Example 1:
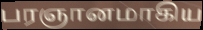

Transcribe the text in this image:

பரஞானமாகிய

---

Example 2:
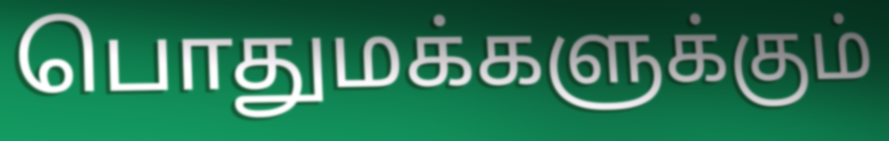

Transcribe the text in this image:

பொதுமக்களுக்கும்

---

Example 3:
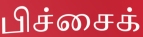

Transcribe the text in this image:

பிச்சைக்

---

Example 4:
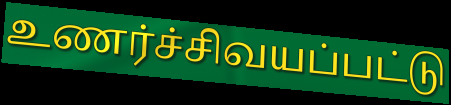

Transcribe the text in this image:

உணர்ச்சிவயப்பட்டு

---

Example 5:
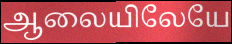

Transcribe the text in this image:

ஆலையிலேயே